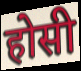
होसी